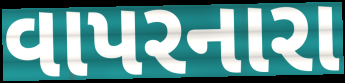
વાપરનારા